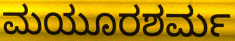
ಮಯೂರಶರ್ಮ